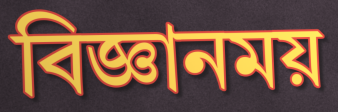
বিজ্ঞানময়